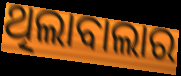
ଥିଲାବାଲାର